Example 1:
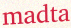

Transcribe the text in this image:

madta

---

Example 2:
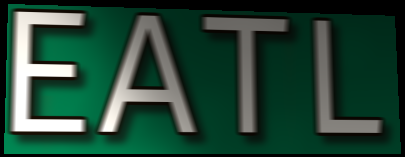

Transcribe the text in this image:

EATL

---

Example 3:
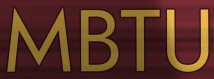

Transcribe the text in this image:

MBTU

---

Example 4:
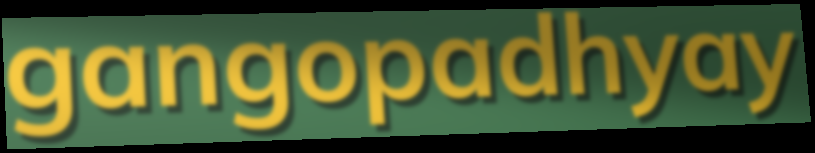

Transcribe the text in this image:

gangopadhyay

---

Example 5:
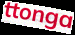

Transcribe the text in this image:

ttonga